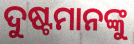
ଦୁଷ୍ଟମାନଙ୍କୁ